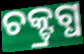
ଚକ୍ଟ୍ରଗ୍ଧ